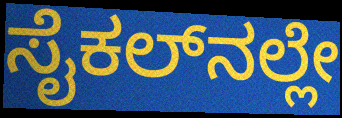
ಸೈಕಲ್‌ನಲ್ಲೇ